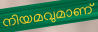
നിയമവുമാണ്